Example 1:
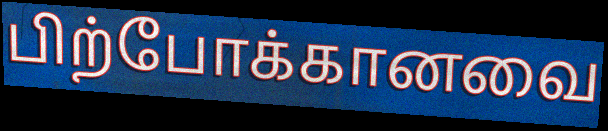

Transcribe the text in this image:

பிற்போக்கானவை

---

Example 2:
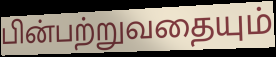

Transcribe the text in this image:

பின்பற்றுவதையும்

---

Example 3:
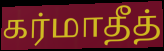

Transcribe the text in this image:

கர்மாதீத்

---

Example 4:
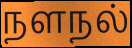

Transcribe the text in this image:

நளநல்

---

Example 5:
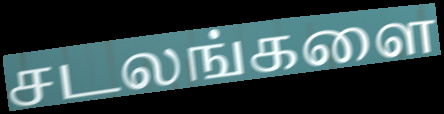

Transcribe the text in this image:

சடலங்களை